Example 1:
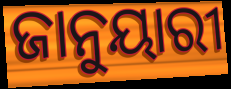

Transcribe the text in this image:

ଜାନୁୟାରୀ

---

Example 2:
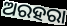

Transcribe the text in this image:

ଅରହରା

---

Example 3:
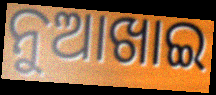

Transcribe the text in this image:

ନୁଆଖାଇ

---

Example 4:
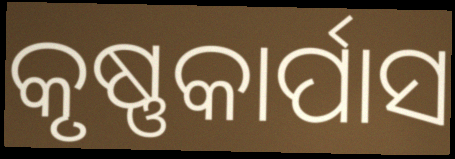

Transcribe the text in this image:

କୃଷ୍ଣକାର୍ପାସ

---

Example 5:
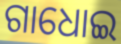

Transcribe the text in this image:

ଗାଧୋଇ